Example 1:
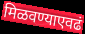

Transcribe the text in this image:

मिळवण्याएवढं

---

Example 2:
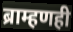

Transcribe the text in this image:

ब्राम्हणही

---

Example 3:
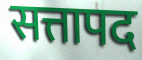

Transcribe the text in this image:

सत्तापद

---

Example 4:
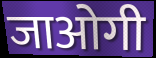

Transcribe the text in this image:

जाओगी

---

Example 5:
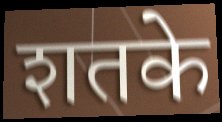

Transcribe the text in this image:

शतके